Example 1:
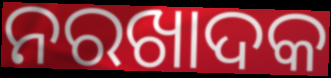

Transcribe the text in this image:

ନରଖାଦକ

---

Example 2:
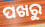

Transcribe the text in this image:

ପଖରୁ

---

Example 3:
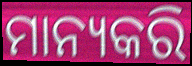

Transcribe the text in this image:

ମାନ୍ୟକରି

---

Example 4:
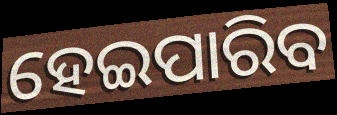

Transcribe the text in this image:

ହେଇପାରିବ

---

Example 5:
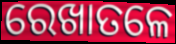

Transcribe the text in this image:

ରେଖାତଳେ